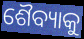
ଶୈବ୍ୟାକୁ